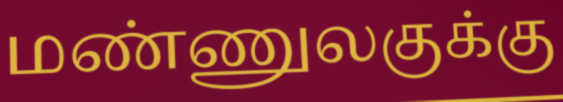
மண்ணுலகுக்கு